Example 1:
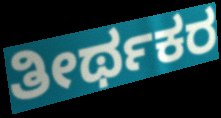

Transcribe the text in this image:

ತೀರ್ಥಕರ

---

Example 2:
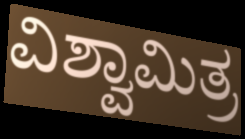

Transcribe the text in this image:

ವಿಶ್ವಾಮಿತ್ರ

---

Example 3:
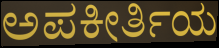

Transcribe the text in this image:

ಅಪಕೀರ್ತಿಯ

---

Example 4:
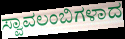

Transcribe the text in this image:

ಸ್ವಾವಲಂಬಿಗಳಾದ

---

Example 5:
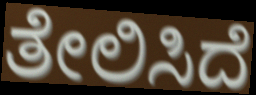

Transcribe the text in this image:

ತೇಲಿಸಿದೆ